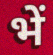
भें